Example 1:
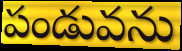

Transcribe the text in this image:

పండువను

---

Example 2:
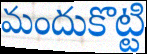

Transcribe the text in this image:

మందుకొట్టి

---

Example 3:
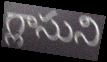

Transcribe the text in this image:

గ్లాసుని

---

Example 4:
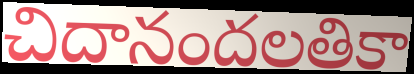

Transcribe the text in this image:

చిదానందలతికా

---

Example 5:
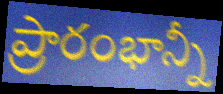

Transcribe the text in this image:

ప్రారంభాన్నీ